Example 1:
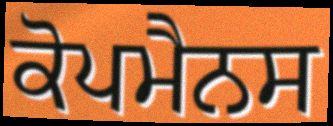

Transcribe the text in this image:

ਕੋਪਮੈਨਸ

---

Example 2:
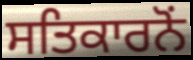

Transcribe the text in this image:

ਸਤਿਕਾਰਨੋਂ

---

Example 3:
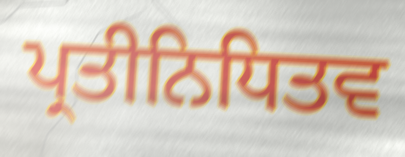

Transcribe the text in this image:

ਪ੍ਰਤੀਨਿਧਿਤਵ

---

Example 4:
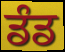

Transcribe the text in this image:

ਡੰਡ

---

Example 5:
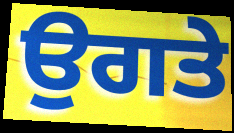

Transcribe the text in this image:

ਉਗਤੇ